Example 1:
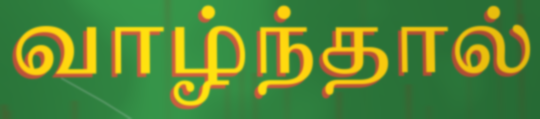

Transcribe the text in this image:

வாழ்ந்தால்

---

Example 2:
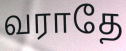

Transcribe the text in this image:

வராதே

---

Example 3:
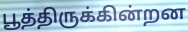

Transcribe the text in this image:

பூத்திருக்கின்றன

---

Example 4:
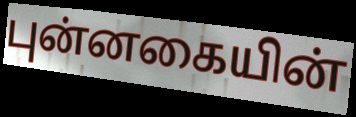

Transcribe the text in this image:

புன்னகையின்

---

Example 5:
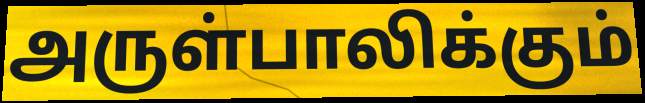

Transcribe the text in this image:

அருள்பாலிக்கும்